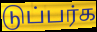
டுப்பர்க